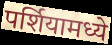
पर्शियामध्ये